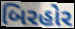
બિરહોર